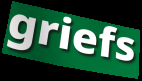
griefs